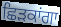
ਛਿੜਕਾਂਗਾ